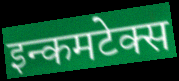
इन्कमटेक्स